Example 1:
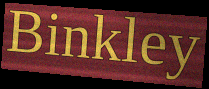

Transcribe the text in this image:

Binkley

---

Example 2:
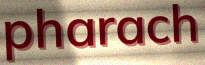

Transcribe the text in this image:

pharach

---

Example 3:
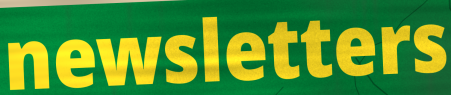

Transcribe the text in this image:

newsletters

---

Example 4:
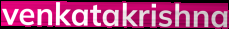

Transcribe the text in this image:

venkatakrishna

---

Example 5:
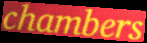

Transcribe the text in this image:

chambers